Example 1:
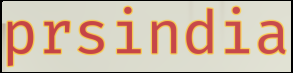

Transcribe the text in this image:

prsindia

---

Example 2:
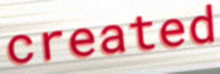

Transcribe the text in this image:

created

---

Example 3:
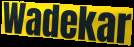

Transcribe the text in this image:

Wadekar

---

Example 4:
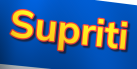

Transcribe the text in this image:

Supriti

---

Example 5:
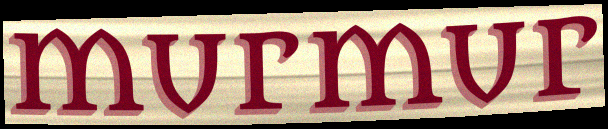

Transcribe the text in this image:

murmur